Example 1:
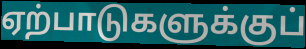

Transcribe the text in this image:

ஏற்பாடுகளுக்குப்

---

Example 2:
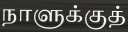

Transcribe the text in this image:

நாளுக்குத்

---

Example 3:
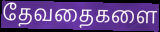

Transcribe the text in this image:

தேவதைகளை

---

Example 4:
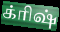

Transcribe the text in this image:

க்ரிஷ்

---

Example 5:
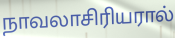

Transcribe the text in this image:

நாவலாசிரியரால்